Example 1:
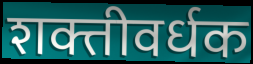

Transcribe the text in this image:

शक्तीवर्धक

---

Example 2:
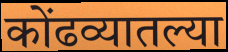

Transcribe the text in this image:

कोंढव्यातल्या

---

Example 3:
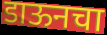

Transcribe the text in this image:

डाऊनचा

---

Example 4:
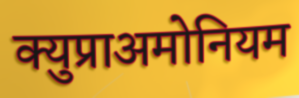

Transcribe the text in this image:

क्युप्राअमोनियम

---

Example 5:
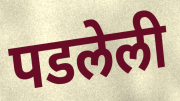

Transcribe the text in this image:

पडलेली